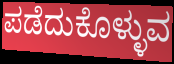
ಪಡೆದುಕೊಳ್ಳುವ